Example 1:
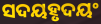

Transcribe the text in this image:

ସଦୟହୃଦୟଂ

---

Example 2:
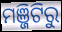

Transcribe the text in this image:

ମଞ୍ଜିଟିରୁ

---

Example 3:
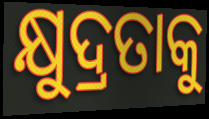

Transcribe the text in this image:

କ୍ଷୁଦ୍ରତାକୁ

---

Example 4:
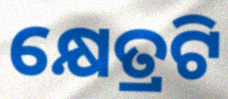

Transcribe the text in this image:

କ୍ଷେତ୍ରଟି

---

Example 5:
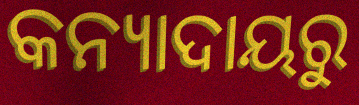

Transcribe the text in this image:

କନ୍ୟାଦାୟରୁ